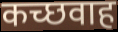
कच्छवाह